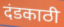
दंडकाठी